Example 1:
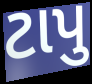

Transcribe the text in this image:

ટાપુ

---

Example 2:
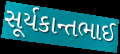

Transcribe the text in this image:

સૂર્યકાન્તભાઈ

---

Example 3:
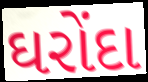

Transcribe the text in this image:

ઘરોંદા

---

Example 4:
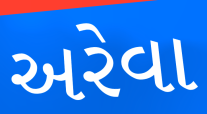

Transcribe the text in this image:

અરેવા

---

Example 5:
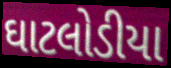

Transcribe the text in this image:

ઘાટલોડીયા